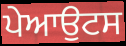
ਪੇਆਉਟਸ